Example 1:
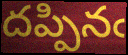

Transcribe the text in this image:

దప్పినఁ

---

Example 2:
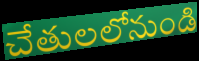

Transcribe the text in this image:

చేతులలోనుండి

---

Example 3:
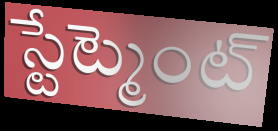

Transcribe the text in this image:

స్టేట్మెంట్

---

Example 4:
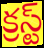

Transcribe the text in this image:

క్రస్ట్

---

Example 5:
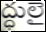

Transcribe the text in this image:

ద్ధులై